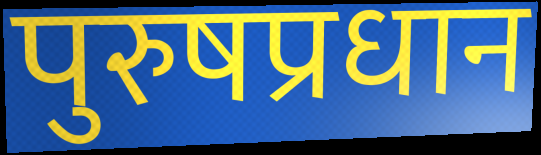
पुरुषप्रधान